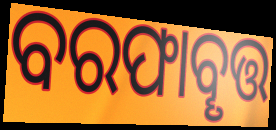
ବରଫାବୄତ୍ତ